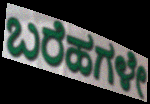
ಬರೆಹಗಳೇ